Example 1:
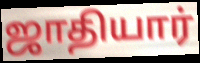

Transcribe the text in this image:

ஜாதியார்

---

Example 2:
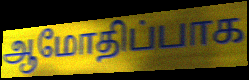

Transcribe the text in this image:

ஆமோதிப்பாக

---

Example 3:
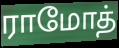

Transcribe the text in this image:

ராமோத்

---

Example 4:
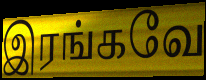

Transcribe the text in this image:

இரங்கவே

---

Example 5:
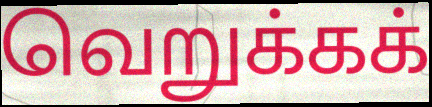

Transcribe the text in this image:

வெறுக்கக்